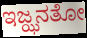
ಇಜ್ಝನತೋ